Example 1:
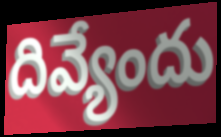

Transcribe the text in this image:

దివ్యేందు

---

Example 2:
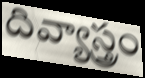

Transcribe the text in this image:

దివ్యాస్త్రం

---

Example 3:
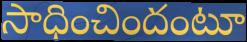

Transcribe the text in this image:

సాధించిందంటూ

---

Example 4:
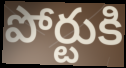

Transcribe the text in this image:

పోర్టుకి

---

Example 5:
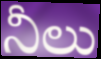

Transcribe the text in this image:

నీలు